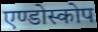
एण्डोस्कोप